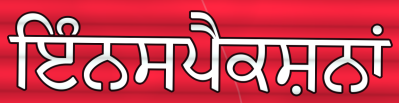
ਇੰਨਸਪੈਕਸ਼ਨਾਂ